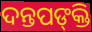
ଦନ୍ତପଙ୍‍କ୍ତି